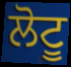
ਲੋਟੂ